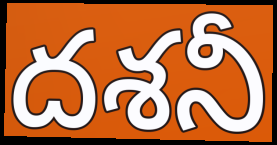
దశనీ